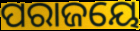
ପରାଜୟେ